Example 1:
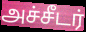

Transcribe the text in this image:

அச்சீடர்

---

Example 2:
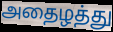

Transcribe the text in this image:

அதைழத்து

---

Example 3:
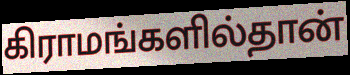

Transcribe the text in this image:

கிராமங்களில்தான்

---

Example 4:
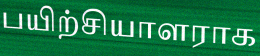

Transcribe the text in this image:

பயிற்சியாளராக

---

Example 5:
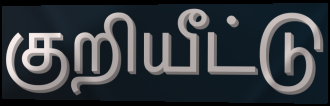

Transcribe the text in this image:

குறியீட்டு